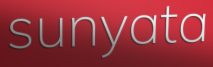
sunyata